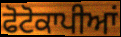
ਫੋਟੋਕਾਪੀਆਂ